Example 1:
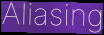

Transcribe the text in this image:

Aliasing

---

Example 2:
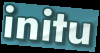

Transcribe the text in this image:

initu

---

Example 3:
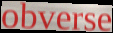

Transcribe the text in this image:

obverse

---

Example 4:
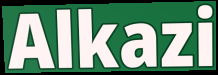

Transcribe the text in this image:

Alkazi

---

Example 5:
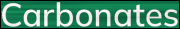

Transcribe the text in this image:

Carbonates